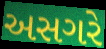
અસગરે